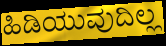
ಹಿಡಿಯುವುದಿಲ್ಲ